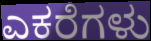
ಎಕರೆಗಳು